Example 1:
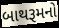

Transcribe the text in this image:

બાથરૂમનો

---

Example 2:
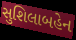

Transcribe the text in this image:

સુશિલાબહેન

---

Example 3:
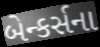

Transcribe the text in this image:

બેન્કર્સના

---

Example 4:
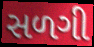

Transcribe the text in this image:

સળગી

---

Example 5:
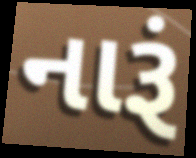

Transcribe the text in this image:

નારૂં